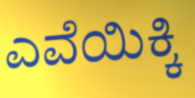
ಎವೆಯಿಕ್ಕಿ